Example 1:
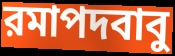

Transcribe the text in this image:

রমাপদবাবু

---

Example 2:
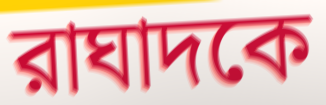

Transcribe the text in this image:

রাঘাদকে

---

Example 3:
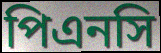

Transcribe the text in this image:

পিএনসি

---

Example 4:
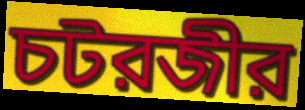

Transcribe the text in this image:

চটরজীর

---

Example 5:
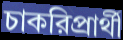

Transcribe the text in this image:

চাকরিপ্রার্থী